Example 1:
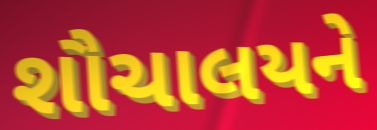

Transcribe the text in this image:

શૌચાલયને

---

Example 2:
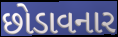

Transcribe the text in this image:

છોડાવનાર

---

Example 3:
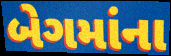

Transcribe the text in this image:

બેગમાંના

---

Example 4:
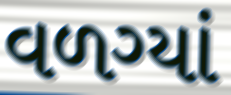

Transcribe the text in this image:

વળગ્યાં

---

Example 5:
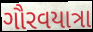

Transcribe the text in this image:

ગૌરવયાત્રા